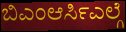
ಬಿಎಂಆರ್ಸಿಎಲ್ಗೆ